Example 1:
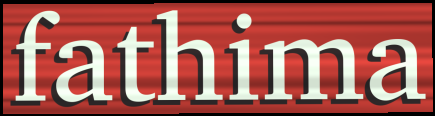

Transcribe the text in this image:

fathima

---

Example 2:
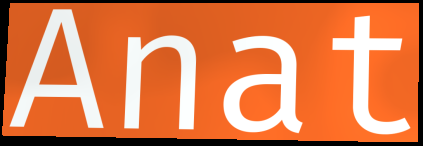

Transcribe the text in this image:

Anat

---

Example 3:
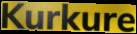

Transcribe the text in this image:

Kurkure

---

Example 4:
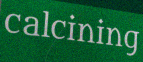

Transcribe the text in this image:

calcining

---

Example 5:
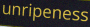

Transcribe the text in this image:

unripeness